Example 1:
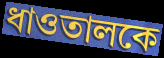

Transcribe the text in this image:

ধাওতালকে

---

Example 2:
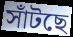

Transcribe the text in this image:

সাঁটছে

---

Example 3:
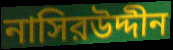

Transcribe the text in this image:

নাসিরউদ্দীন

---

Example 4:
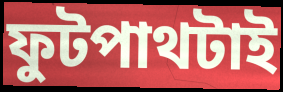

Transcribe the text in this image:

ফুটপাথটাই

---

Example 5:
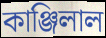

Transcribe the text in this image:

কাঞ্জিলাল